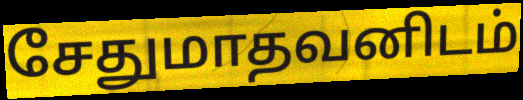
சேதுமாதவனிடம்